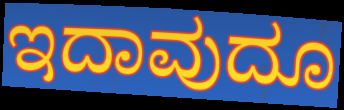
ಇದಾವುದೂ